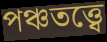
পঞ্চতত্ত্বে